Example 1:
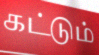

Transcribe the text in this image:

கட்டும்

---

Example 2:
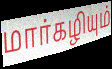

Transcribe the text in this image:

மார்கழியும்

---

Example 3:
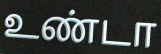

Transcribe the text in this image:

உண்டா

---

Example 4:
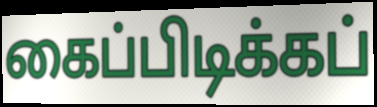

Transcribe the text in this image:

கைப்பிடிக்கப்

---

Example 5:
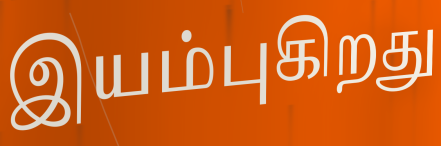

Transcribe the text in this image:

இயம்புகிறது